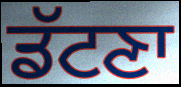
ਡੱਟਣਾ